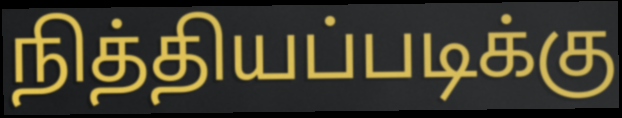
நித்தியப்படிக்கு